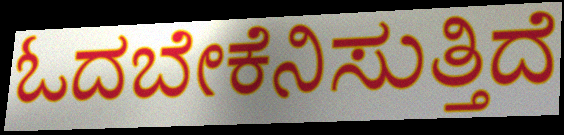
ಓದಬೇಕೆನಿಸುತ್ತಿದೆ